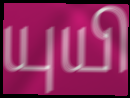
யுயி